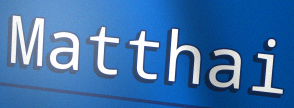
Matthai